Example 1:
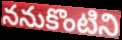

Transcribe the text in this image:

ననుకొంటిని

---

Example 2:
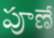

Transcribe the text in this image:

పూణే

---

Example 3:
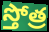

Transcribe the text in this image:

స్తోత్ర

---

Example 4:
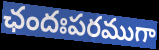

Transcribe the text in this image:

ఛందఃపరముగా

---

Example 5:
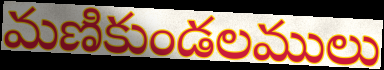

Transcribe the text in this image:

మణికుండలములు